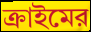
ক্রাইমের